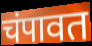
चंपावत